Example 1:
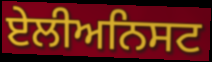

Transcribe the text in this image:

ਏਲੀਅਨਿਸਟ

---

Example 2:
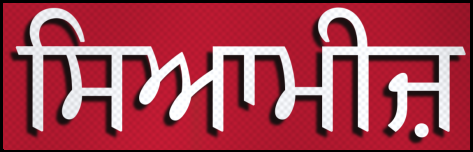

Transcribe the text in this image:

ਸਿਆਮੀਜ਼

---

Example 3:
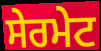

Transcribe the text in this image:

ਸੇਰਮੇਟ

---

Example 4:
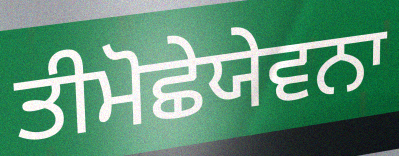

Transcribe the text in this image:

ਤੀਮੋਛੇਯੇਵਨਾ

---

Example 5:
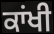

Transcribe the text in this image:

ਕਾਂਖੀ